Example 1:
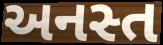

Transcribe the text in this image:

અનસ્ત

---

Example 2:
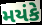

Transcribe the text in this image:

મયંકે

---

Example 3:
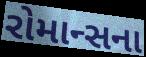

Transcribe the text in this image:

રોમાન્સના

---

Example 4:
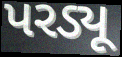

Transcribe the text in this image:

પરડ્યૂ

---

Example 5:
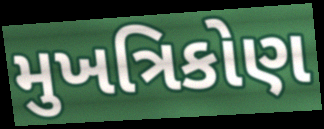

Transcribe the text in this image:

મુખત્રિકોણ